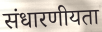
संधारणीयता